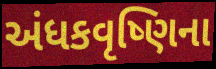
અંધકવૃષ્ણિના